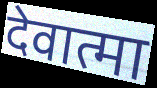
देवात्मा